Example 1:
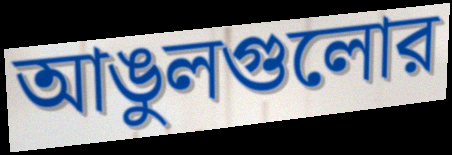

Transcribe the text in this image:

আঙুলগুলোর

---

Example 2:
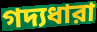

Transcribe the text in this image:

গদ্যধারা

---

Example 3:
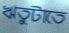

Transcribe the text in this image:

ঋতুটাতে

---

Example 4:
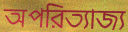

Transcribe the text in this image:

অপরিত্যাজ্য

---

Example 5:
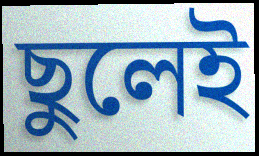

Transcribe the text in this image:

ছুলেই